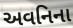
અવનિના